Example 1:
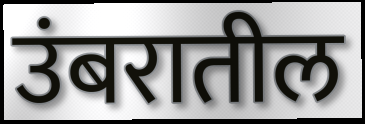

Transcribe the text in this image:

उंबरातील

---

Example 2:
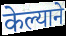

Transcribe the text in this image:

केल्‍याने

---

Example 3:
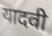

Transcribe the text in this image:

यादवी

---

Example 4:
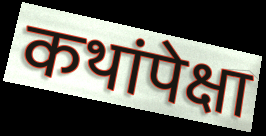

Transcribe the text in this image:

कथांपेक्षा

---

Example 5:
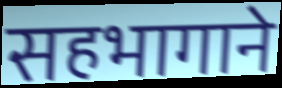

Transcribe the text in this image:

सहभागाने